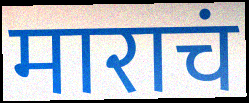
माराचं